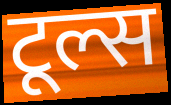
टूल्स